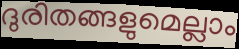
ദുരിതങ്ങളുമെല്ലാം